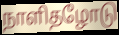
நாளிதழோடு